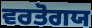
ਵਰਤੋਗਯ